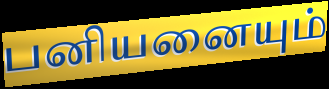
பனியனையும்